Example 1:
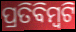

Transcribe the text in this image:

ପ୍ରତିବିମ୍ବଟି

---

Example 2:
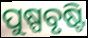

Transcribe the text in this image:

ପୁଷ୍ପବୃଷ୍ଟି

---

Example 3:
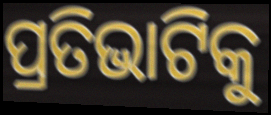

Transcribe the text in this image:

ପ୍ରତିଭାଟିକୁ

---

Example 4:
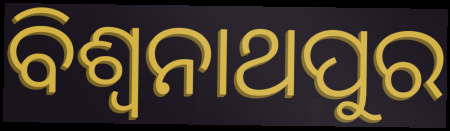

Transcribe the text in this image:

ବିଶ୍ଵନାଥପୁର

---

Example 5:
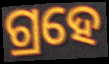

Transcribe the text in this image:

ଗ୍ରହେ